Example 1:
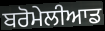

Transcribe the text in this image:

ਬਰੋਮੇਲੀਆਡ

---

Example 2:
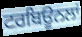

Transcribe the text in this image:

ਟਰਬਿਊਨਲਾਂ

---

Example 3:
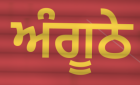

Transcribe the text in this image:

ਅੰਗੂਠੇ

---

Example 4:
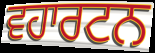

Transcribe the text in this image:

ਵਹਾਰਟਨ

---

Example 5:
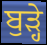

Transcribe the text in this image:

ਬੁੜ੍ਹੇ